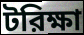
টরিক্ষা